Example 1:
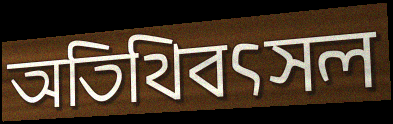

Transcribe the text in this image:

অতিথিবৎসল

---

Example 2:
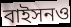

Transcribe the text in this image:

বাইসনও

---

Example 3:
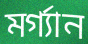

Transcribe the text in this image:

মর্গ্যান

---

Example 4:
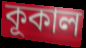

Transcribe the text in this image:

কূকাল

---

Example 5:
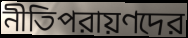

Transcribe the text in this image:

নীতিপরায়ণদের